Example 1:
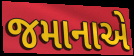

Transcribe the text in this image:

જમાનાએ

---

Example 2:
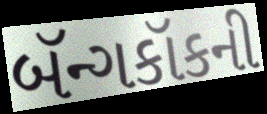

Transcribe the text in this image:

બૅન્ગકૉકની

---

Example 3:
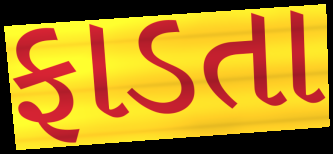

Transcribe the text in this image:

ફાડતા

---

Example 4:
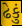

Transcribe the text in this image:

ઢેકું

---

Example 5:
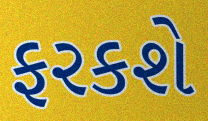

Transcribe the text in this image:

ફરકશે